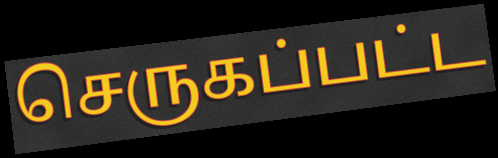
செருகப்பட்ட